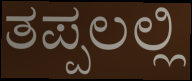
ತಪ್ಪಲಲ್ಲಿ